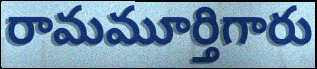
రామమూర్తిగారు